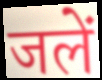
जलें